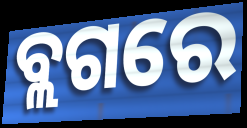
ବ୍ଲଗରେ